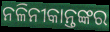
ନଳିନୀକାନ୍ତଙ୍କର